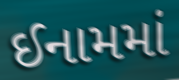
ઈનામમાં